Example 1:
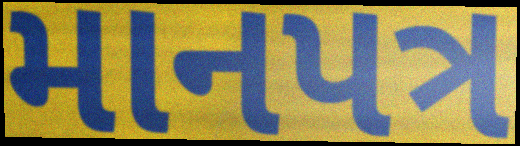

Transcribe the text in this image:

માનપત્ર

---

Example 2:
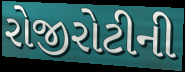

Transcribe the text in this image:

રોજીરોટીની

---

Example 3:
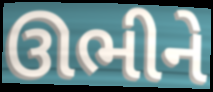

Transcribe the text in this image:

ઊભીને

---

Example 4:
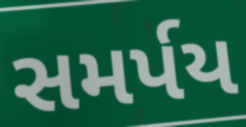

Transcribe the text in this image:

સમર્પય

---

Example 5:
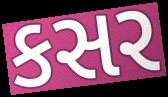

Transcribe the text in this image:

કસર